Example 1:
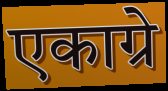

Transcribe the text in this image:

एकाग्रे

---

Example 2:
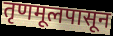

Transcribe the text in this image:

तृणमूलपासून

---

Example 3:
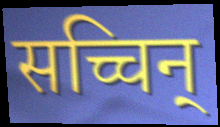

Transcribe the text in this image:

सच्चिन्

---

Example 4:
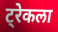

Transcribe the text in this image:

ट्रेकला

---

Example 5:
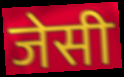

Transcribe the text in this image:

जेसी